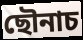
ছৌনাচ